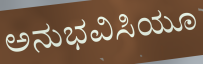
ಅನುಭವಿಸಿಯೂ